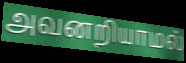
அவனறியாமல்